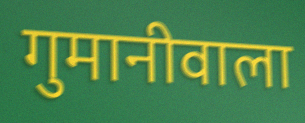
गुमानीवाला